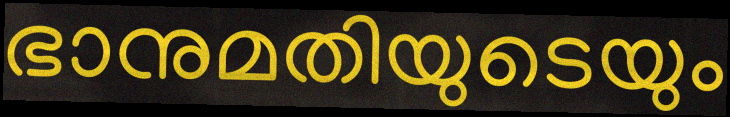
ഭാനുമതിയുടെയും